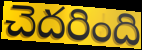
చెదరింది